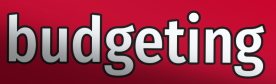
budgeting